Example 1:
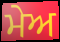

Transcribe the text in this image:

ਮੇਅ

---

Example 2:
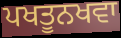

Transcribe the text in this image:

ਪਖਤੂਨਖਵਾ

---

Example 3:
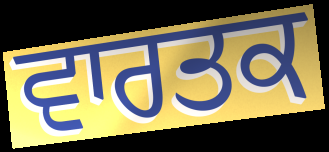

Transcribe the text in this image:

ਵਾਰਤਕ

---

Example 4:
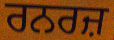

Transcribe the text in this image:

ਰਨਰਜ਼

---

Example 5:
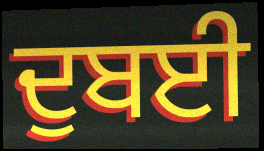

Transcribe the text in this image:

ਦੁਬਈ